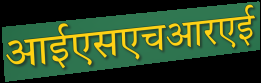
आईएसएचआरएई